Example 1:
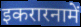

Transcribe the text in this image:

इकरारनामें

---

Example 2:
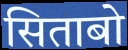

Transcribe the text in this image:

सिताबो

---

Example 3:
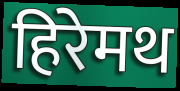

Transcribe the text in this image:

हिरेमथ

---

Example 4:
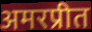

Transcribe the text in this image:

अमरप्रीत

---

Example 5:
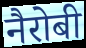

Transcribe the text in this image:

नैरोबी